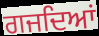
ਗਜਦਿਆਂ